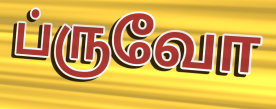
ப்ருவோ